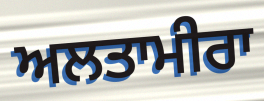
ਅਲਤਾਮੀਰਾ